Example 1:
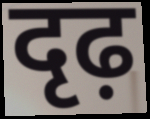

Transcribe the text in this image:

दृढ़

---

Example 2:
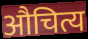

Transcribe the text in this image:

औचित्य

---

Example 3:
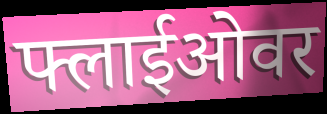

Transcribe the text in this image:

फ्लाईओवर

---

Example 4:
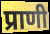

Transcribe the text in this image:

प्राणी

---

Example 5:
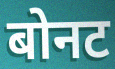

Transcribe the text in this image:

बोनट